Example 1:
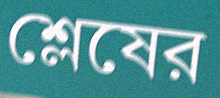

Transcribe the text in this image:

শ্লেষের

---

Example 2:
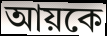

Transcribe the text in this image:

আয়কে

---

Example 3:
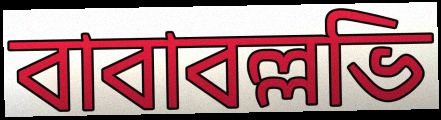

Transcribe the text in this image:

বাবাবল্লভি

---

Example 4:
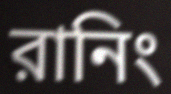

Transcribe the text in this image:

রানিং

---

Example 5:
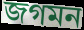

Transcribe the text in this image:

জগমন